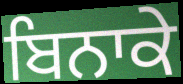
ਬਿਨਾਕੇ